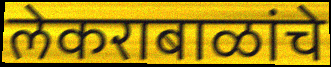
लेकराबाळांचे